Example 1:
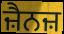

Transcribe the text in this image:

ਜ਼ੈਨਜ਼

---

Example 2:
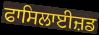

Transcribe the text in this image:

ਫਾਸਿਲਾਈਜ਼ਡ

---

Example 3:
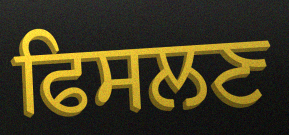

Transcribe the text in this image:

ਫਿਸਲਣ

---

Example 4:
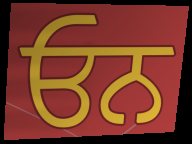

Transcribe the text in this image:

ਓਨ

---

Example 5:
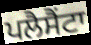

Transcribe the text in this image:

ਪਲੈਸੈਂਟਾ